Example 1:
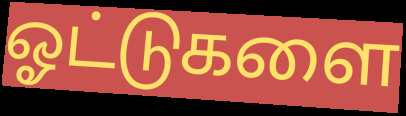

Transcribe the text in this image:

ஓட்டுகளை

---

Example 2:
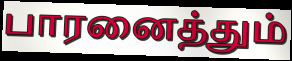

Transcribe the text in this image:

பாரனைத்தும்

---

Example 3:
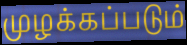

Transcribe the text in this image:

முழக்கப்படும்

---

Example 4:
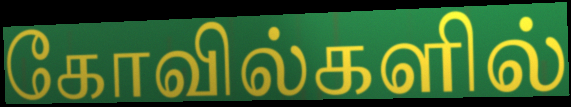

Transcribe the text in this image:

கோவில்களில்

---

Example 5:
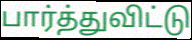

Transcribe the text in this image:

பார்த்துவிட்டு